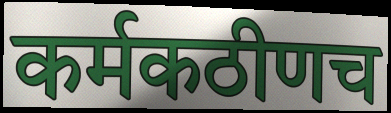
कर्मकठीणच